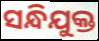
ସନ୍ଧିଯୁକ୍ତ